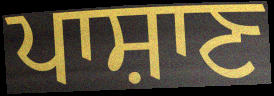
ਪਾਸ਼ਾਣ